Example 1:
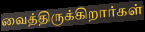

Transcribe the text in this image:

வைத்திருக்கிறார்கள்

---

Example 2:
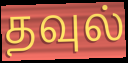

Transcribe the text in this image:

தவுல்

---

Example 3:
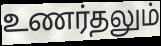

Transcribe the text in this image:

உணர்தலும்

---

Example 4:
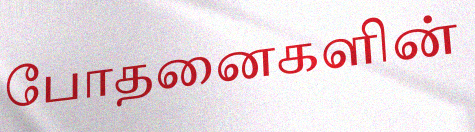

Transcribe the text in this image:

போதனைகளின்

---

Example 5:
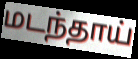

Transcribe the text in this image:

மடந்தாய்